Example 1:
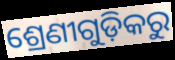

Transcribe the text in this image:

ଶ୍ରେଣୀଗୁଡ଼ିକରୁ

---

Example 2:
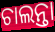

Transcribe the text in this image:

ଚାଲନ୍ତା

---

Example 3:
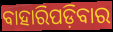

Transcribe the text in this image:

ବାହାରିପଡ଼ିବାର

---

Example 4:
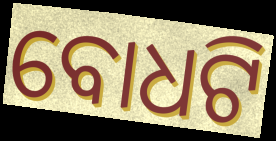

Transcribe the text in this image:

ବୋଧଟି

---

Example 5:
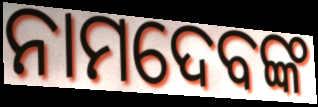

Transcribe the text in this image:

ନାମଦେବଙ୍କ